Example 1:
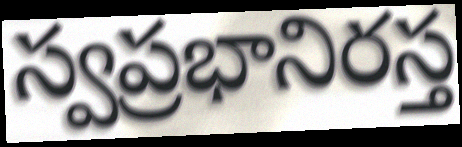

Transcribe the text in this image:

స్వప్రభానిరస్త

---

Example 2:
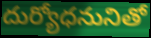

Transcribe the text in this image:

దుర్యోధనునితో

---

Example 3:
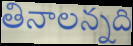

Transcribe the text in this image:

తినాలన్నది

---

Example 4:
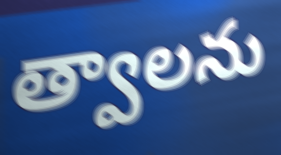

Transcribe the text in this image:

త్వాలను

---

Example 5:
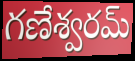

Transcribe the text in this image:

గణేశ్వరమ్